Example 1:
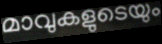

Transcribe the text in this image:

മാവുകളുടെയും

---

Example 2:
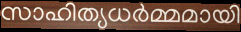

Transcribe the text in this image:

സാഹിത്യധർമ്മമായി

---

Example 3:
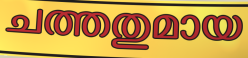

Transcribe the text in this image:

ചത്തതുമായ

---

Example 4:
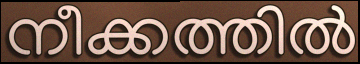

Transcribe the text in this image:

നീക്കത്തിൽ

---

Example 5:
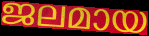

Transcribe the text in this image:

ജലമായ